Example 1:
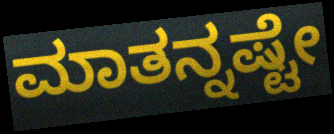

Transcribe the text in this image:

ಮಾತನ್ನಷ್ಟೇ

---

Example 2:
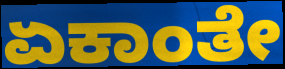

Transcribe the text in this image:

ಏಕಾಂತೇ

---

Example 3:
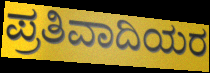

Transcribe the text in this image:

ಪ್ರತಿವಾದಿಯರ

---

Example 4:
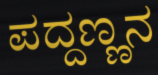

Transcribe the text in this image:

ಪದ್ದಣ್ಣನ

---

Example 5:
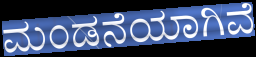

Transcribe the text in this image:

ಮಂಡನೆಯಾಗಿವೆ